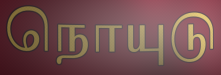
நொயுடு